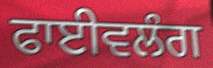
ਫਾਈਵਲੰਗ